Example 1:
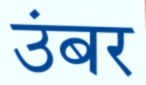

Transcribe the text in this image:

उंबर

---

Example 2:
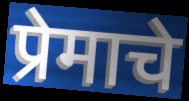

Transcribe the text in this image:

प्रेमाचे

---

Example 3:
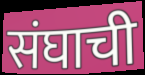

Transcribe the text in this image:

संघाची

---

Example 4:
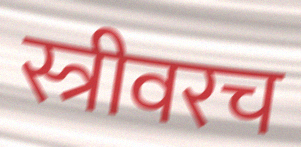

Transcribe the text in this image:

स्त्रीवरच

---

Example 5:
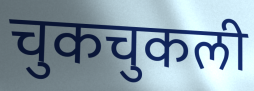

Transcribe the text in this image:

चुकचुकली